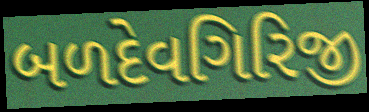
બળદેવગિરિજી